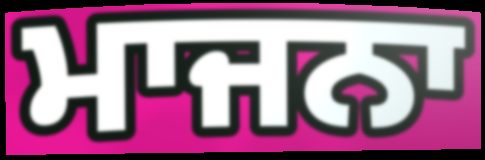
ਮਾਜਨਾ